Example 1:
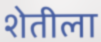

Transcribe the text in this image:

शेतीला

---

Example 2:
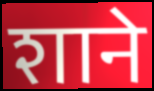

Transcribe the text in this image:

शाने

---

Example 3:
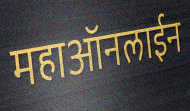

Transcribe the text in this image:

महाऑनलाईन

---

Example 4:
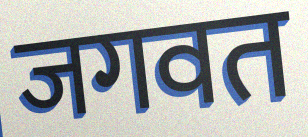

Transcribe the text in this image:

जगवत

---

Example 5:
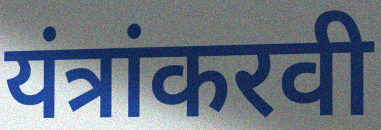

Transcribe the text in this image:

यंत्रांकरवी